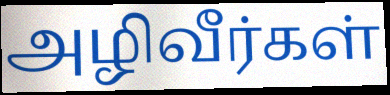
அழிவீர்கள்